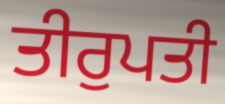
ਤੀਰੁਪਤੀ